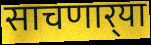
साचणार्‍या